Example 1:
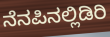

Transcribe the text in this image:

ನೆನಪಿನಲ್ಲಿಡಿರಿ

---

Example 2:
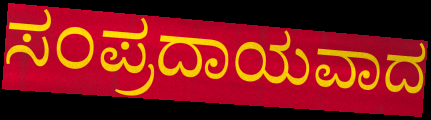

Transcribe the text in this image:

ಸಂಪ್ರದಾಯವಾದ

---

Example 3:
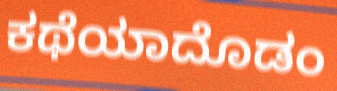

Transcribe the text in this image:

ಕಥೆಯಾದೊಡಂ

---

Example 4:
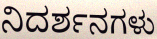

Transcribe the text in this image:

ನಿದರ್ಶನಗಳು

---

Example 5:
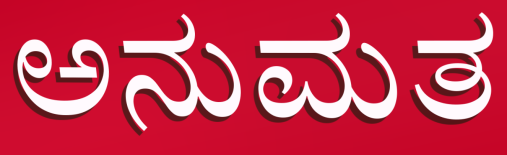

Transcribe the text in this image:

ಅನುಮತ